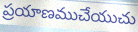
ప్రయాణముచేయుచు